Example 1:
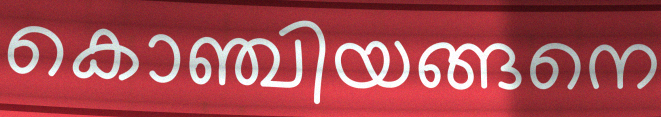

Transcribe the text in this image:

കൊഞ്ചിയങ്ങനെ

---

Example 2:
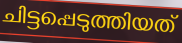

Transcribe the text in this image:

ചിട്ടപ്പെടുത്തിയത്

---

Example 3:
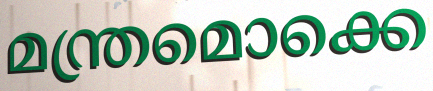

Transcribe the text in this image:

മന്ത്രമൊക്കെ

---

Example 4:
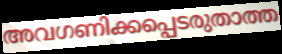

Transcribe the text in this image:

അവഗണിക്കപ്പെടരുതാത്ത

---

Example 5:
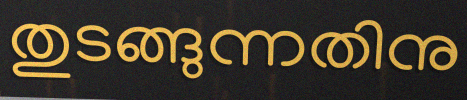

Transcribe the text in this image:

തുടങ്ങുന്നതിനു